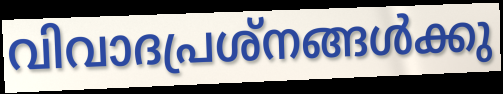
വിവാദപ്രശ്നങ്ങൾക്കു